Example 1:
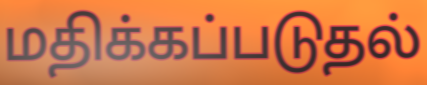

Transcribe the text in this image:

மதிக்கப்படுதல்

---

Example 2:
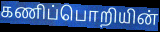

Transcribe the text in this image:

கணிப்பொறியின்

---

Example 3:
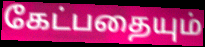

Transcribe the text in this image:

கேட்பதையும்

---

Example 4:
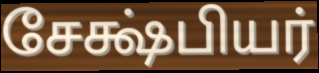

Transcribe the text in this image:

சேக்ஷ்பியர்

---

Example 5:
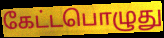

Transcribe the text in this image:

கேட்டபொழுது